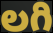
లగి